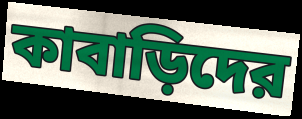
কাবাড়িদের